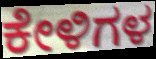
ಕೇಳಿಗಳ